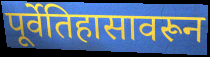
पूर्वेतिहासावरून